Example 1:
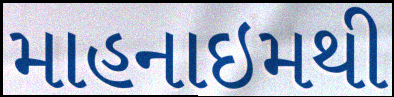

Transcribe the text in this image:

માહનાઇમથી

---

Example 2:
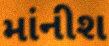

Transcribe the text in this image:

માંનીશ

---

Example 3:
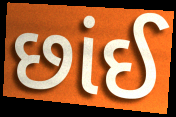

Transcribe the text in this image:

છાંઈ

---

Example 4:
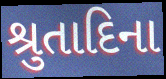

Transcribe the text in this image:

શ્રુતાદિના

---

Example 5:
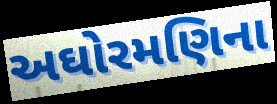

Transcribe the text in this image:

અઘોરમણિના